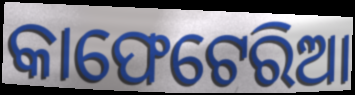
କାଫେଟେରିଆ